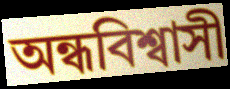
অন্ধবিশ্বাসী